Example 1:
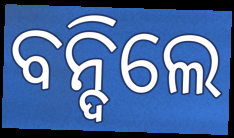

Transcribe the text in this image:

ବନ୍ଦିଲେ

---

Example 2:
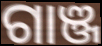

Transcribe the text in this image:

ଗାଞ୍ଜ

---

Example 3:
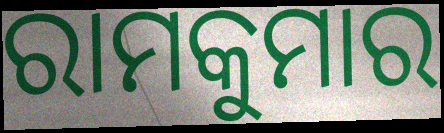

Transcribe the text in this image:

ରାମକୁମାର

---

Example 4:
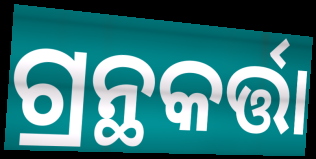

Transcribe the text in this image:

ଗ୍ରନ୍ଥକର୍ତ୍ତା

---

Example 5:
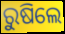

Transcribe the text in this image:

ରୁଷିଲେ